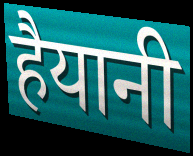
हैयानी